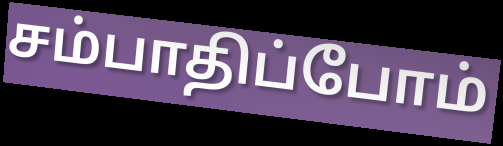
சம்பாதிப்போம்